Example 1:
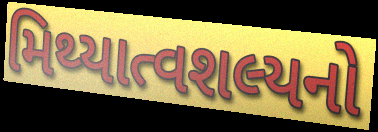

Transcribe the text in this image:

મિથ્યાત્વશલ્યનો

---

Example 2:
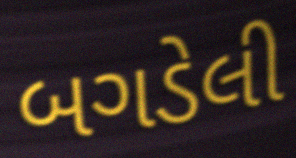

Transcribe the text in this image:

બગડેલી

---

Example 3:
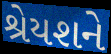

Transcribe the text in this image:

શ્રેયશને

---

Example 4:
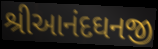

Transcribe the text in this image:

શ્રીઆનંદઘનજી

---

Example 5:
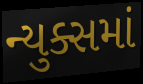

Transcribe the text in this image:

ન્યુક્સમાં